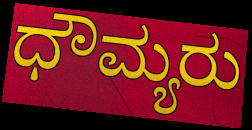
ಧೌಮ್ಯರು